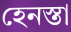
হেনস্তা